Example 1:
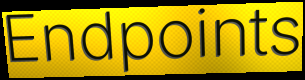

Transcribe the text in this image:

Endpoints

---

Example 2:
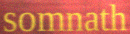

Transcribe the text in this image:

somnath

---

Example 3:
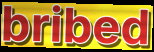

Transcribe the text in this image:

bribed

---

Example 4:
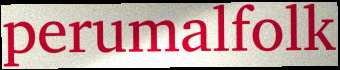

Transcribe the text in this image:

perumalfolk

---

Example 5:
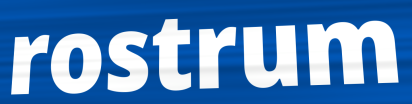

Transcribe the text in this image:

rostrum